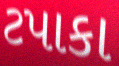
ટપાકા